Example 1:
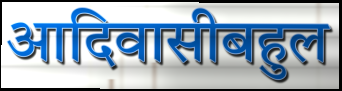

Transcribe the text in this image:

आदिवासीबहुल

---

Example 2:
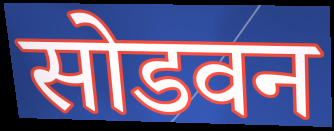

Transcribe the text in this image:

सोडवन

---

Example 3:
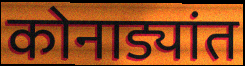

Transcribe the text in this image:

कोनाड्यांत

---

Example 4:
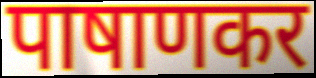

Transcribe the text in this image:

पाषाणकर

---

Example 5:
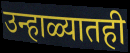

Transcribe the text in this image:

उन्हाळ्यातही